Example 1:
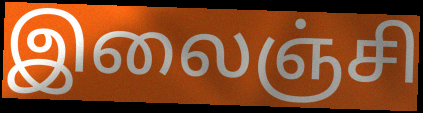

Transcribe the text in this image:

இலைஞ்சி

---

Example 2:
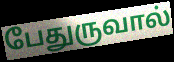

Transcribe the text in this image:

பேதுருவால்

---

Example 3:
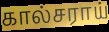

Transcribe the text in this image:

கால்சராய்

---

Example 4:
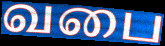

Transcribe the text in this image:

வபை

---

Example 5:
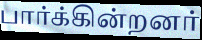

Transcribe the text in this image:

பார்க்கின்றனர்